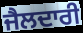
ਜੈਲਦਾਰੀ